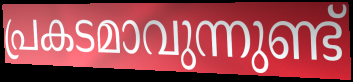
പ്രകടമാവുന്നുണ്ട്